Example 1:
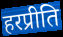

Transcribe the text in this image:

हरप्रीति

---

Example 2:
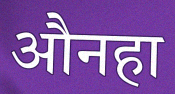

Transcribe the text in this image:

औनहा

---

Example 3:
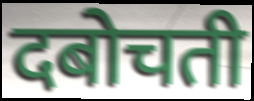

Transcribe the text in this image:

दबोचती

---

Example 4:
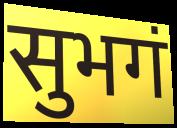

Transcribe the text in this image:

सुभगं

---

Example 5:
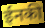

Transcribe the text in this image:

ईनकी